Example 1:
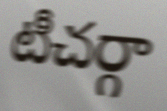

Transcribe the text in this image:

టీచర్గా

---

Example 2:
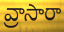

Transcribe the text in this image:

వ్రాసారా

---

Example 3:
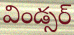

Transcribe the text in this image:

విండ్సర్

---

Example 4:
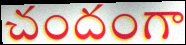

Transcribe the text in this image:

చందంగా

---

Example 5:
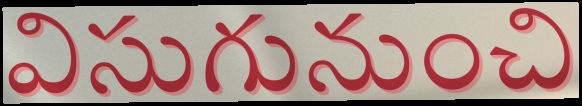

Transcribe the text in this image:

విసుగునుంచి